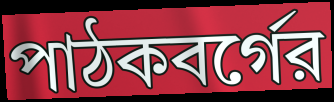
পাঠকবর্গের